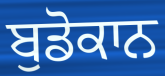
ਬੁਡੋਕਾਨ